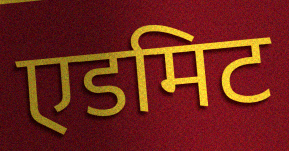
एडमिट